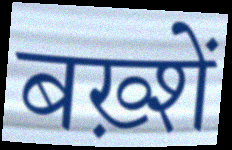
बख़्शें